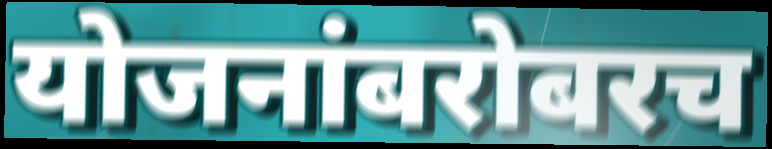
योजनांबरोबरच